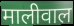
मालीवाल